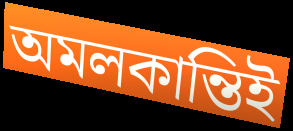
অমলকান্তিই